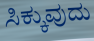
ಸಿಕ್ಕುವುದು